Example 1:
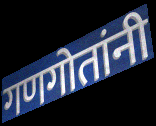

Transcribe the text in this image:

गणगोतांनी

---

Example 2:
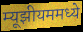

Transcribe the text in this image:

म्यूझीयममध्ये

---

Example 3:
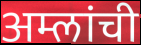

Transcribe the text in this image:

अम्‍लांची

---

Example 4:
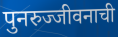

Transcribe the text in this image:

पुनरुज्जीवनाची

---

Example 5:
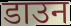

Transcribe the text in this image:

डाउन